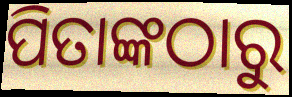
ପିତାଙ୍କଠାରୁ